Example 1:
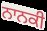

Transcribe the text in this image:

ਨਾਨਕੀ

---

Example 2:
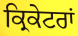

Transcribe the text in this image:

ਕ੍ਰਿਕੇਟਰਾਂ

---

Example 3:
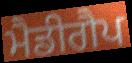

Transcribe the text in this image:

ਮੈਡੀਗੈਪ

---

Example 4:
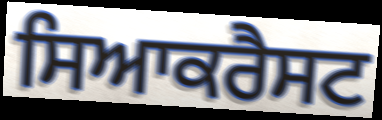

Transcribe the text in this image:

ਸਿਆਕਰੈਸਟ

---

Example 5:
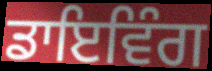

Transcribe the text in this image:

ਡਾਇਵਿੰਗ